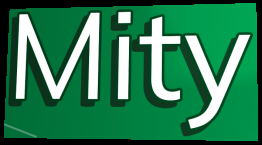
Mity